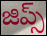
జిప్స్